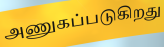
அணுகப்படுகிறது